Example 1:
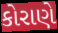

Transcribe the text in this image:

કોરાણે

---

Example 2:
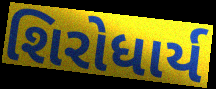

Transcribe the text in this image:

શિરોધાર્ય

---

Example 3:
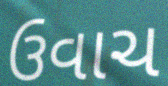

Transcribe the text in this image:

ઉવાચ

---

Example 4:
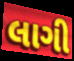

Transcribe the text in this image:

લાગી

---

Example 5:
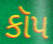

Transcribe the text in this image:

કૉપ